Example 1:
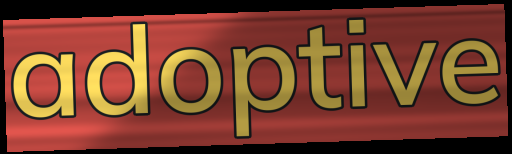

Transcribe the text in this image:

adoptive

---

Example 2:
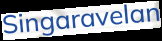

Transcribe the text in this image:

Singaravelan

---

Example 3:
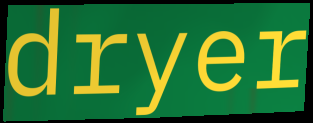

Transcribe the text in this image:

dryer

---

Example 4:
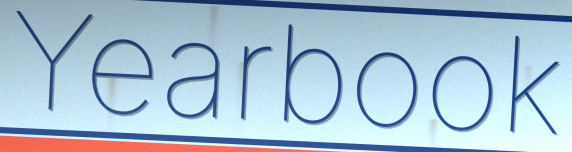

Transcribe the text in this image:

Yearbook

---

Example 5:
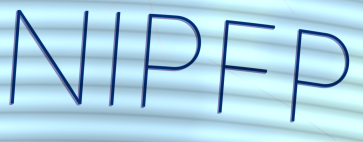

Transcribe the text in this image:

NIPFP